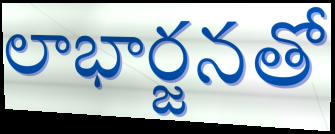
లాభార్జనతో